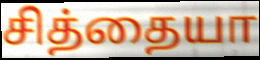
சித்தையா